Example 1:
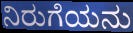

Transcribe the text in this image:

ನಿರುಗೆಯನು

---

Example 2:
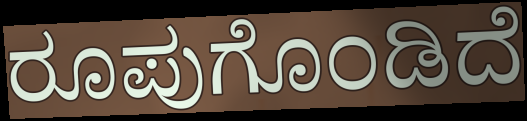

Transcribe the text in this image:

ರೂಪುಗೊಂಡಿದೆ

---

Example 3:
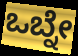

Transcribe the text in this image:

ಒಬ್ನೇ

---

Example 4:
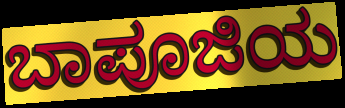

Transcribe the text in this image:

ಬಾಪೂಜಿಯ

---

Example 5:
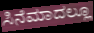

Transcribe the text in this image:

ಸಿನೆಮಾದಲ್ಲೂ